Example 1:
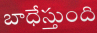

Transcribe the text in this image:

బాధేస్తుంది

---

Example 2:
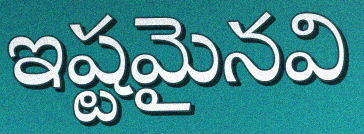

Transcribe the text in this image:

ఇష్టమైనవి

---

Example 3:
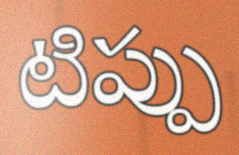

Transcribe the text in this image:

టిప్పు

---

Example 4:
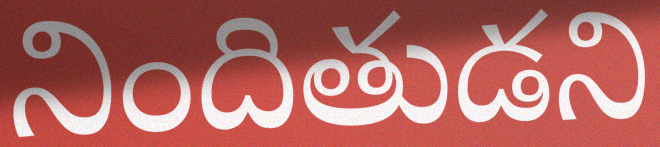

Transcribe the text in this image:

నిందితుడని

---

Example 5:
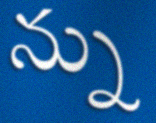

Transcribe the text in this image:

న్ను